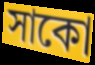
সাকো